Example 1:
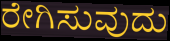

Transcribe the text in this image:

ರೇಗಿಸುವುದು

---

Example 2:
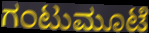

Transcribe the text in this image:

ಗಂಟುಮೂಟೆ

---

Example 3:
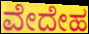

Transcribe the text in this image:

ವೇದೇಹ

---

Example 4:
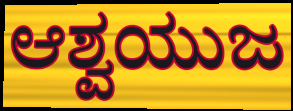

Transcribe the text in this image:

ಆಶ್ವಯುಜ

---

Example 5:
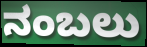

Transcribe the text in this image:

ನಂಬಲು